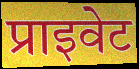
प्राइवेट